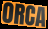
ORCA